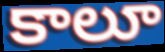
కాలూ